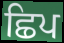
ਛਿਪ